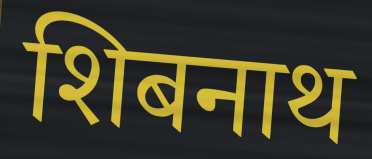
शिबनाथ